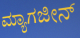
ಮ್ಯಾಗಜೀನ್